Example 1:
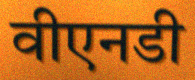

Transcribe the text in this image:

वीएनडी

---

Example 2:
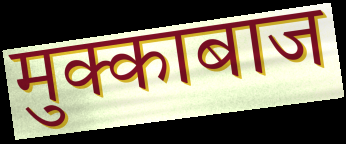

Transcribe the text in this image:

मुक्काबाज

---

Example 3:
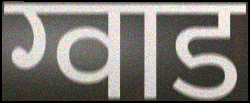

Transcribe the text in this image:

ग्वाड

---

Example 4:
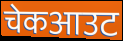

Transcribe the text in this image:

चेकआउट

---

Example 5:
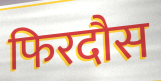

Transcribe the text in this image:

फिरदौस